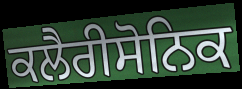
ਕਲੈਰੀਸੋਨਿਕ